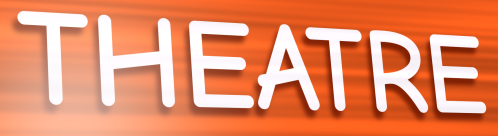
THEATRE